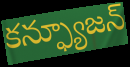
కన్ఫ్యూజన్